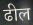
ढील